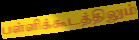
பள்ளிக்கூடத்திலும்